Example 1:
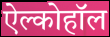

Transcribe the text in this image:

ऐल्कोहॉल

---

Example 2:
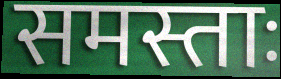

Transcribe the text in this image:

समस्ताः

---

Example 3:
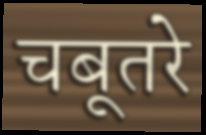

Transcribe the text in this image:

चबूतरे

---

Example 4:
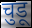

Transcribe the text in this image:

चुडू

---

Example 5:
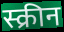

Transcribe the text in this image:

स्क्रीन